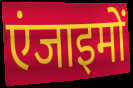
एंजाइमों